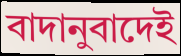
বাদানুবাদেই